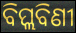
ବିପ୍ଲବିଣୀ